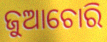
ଜୁଆଚୋରି